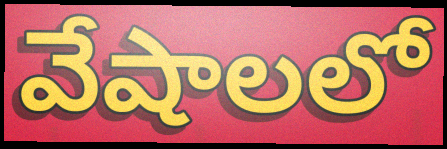
వేషాలలో